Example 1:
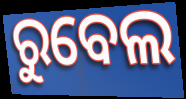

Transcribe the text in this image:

ରୁବେଲ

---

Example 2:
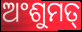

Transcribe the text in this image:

ଅଂଶୁମତ୍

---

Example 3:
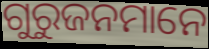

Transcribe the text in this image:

ଗୁରୁଜନମାନେ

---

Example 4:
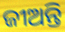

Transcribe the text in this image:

ଜୀଅନ୍ତି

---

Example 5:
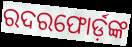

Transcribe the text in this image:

ରଦରଫୋର୍ଡ଼ଙ୍କ